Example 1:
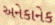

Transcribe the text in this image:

અનેકાનેક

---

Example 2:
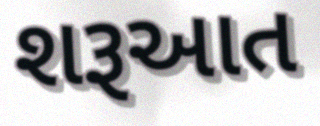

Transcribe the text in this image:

શરૂઆત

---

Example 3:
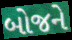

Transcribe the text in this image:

બોજને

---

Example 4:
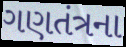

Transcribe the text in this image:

ગણતંત્રના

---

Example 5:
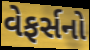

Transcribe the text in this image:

વેફર્સનો